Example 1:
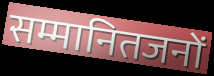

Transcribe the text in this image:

सम्मानितजनों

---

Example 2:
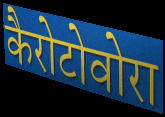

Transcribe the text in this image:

कैरोटोवोरा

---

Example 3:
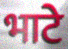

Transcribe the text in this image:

भाटे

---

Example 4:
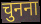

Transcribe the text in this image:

चुनना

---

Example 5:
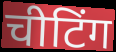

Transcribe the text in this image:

चीटिंग